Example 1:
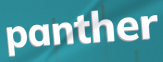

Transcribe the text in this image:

panther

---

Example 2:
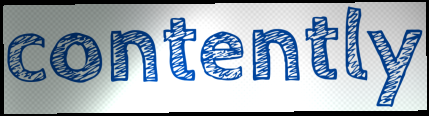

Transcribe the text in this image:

contently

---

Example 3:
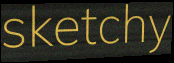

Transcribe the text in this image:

sketchy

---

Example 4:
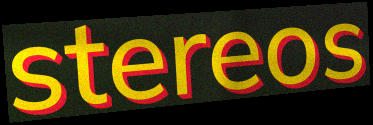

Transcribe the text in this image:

stereos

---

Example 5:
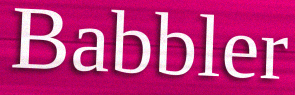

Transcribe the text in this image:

Babbler